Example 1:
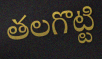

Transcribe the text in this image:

తలగొట్టి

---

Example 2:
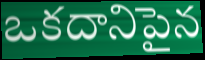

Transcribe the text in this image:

ఒకదానిపైన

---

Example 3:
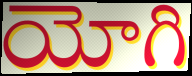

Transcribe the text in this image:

యోగి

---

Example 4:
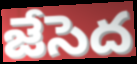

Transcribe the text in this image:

జేసెద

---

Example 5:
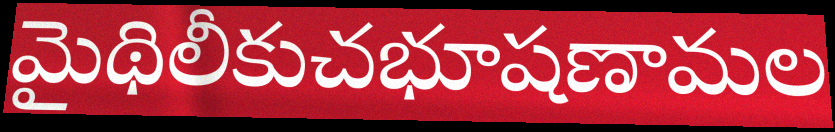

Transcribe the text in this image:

మైథిలీకుచభూషణామల